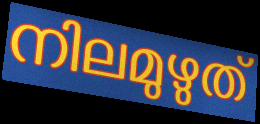
നിലമുഴുത്